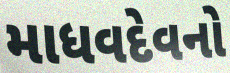
માધવદેવનો